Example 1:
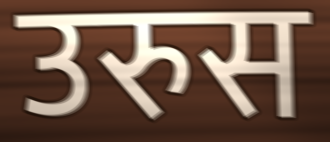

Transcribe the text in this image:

उरुस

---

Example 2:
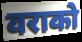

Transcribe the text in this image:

वराको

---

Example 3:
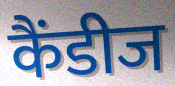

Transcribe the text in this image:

कैंडीज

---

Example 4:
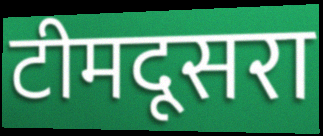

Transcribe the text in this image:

टीमदूसरा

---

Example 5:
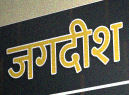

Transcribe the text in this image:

जगदीश